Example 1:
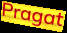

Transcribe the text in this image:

Pragat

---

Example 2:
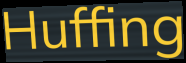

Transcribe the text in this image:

Huffing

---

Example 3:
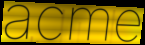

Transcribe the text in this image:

acme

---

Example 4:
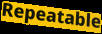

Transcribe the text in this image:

Repeatable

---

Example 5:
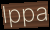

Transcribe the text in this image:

Ippa